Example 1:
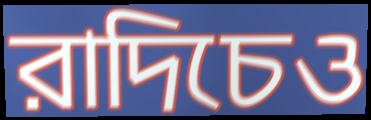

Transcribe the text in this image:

রাদিচেও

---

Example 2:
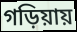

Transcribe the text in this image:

গড়িয়ায়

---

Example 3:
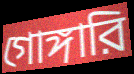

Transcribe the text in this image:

গোঙ্গারি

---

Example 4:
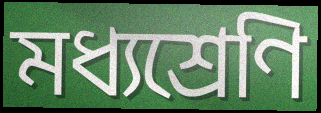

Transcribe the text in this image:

মধ্যশ্রেণি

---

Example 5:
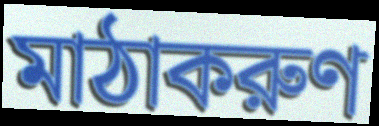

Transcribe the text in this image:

মাঠাকরুণ